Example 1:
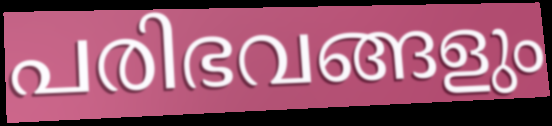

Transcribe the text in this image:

പരിഭവങ്ങളും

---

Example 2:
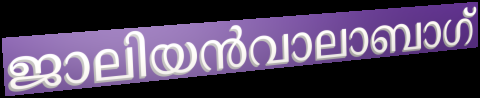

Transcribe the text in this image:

ജാലിയൻവാലാബാഗ്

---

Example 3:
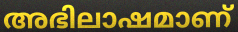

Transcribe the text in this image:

അഭിലാഷമാണ്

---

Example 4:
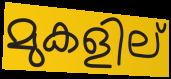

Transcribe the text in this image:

മുകളില്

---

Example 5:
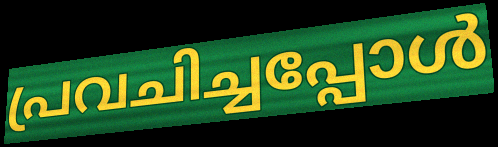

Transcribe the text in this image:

പ്രവചിച്ചപ്പോൾ